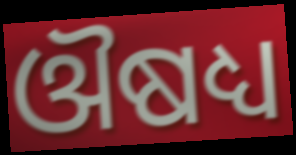
ଔଷଧ୍ୟ